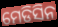
ମେଡିସିନ